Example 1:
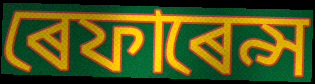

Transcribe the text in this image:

ৰেফাৰেন্স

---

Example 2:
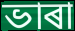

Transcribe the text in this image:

ভাৰা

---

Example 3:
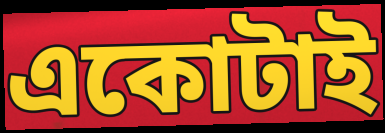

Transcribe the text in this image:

একোটাই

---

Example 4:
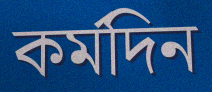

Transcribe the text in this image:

কৰ্মদিন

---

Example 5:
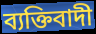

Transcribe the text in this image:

ব্যক্তিবাদী